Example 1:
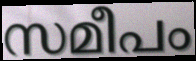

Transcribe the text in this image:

സമീപം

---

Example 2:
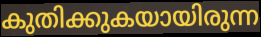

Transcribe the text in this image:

കുതിക്കുകയായിരുന്ന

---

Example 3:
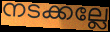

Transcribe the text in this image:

നടക്കല്ലേ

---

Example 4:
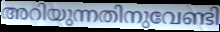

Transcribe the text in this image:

അറിയുന്നതിനുവേണ്ടി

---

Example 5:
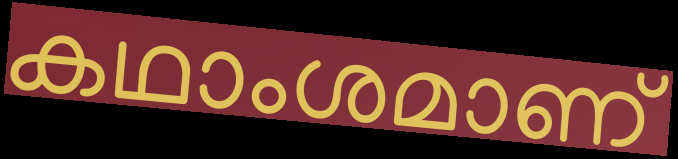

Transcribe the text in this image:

കഥാംശമാണ്